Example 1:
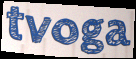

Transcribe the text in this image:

tvoga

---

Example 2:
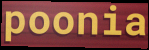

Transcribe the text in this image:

poonia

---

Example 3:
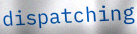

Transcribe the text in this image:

dispatching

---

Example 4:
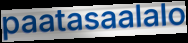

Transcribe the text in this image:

paatasaalalo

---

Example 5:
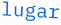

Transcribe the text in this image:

lugar